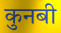
कुनबी